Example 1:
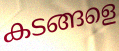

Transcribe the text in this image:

കടങ്ങളെ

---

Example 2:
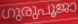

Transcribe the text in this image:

ഗുരുപൂജാ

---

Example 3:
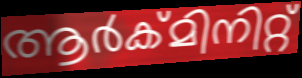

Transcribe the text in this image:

ആർക്മിനിറ്റ്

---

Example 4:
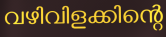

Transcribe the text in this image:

വഴിവിളക്കിന്റെ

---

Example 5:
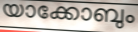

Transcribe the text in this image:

യാക്കോബും